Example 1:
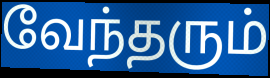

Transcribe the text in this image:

வேந்தரும்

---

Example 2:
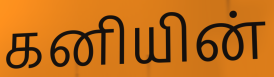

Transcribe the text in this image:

கனியின்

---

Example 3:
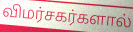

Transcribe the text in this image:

விமர்சகர்களால்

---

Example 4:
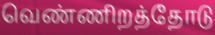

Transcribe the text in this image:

வெண்ணிறத்தோடு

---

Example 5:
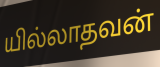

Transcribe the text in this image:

யில்லாதவன்